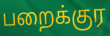
பறைக்குர